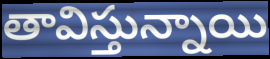
తావిస్తున్నాయి